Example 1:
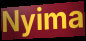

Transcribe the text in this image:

Nyima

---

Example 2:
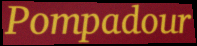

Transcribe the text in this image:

Pompadour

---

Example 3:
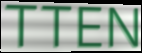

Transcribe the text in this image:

TTEN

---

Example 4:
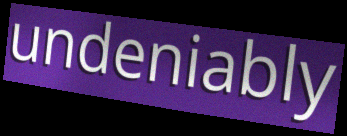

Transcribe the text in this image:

undeniably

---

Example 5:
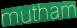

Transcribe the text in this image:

mutham